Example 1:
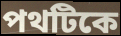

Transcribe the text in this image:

পথটিকে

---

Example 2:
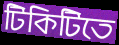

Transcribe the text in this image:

টিকিটিতে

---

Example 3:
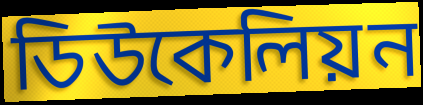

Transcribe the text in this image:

ডিউকেলিয়ন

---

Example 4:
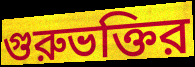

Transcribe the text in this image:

গুরুভক্তির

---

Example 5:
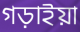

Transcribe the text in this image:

গড়াইয়া